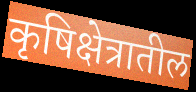
कृषिक्षेत्रातील